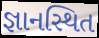
જ્ઞાનસ્થિત